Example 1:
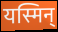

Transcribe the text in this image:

यस्मिन्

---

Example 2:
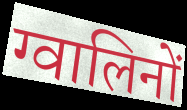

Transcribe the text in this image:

ग्वालिनों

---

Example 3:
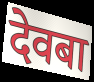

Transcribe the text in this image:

देवबा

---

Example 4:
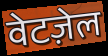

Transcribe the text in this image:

वेटज़ेल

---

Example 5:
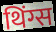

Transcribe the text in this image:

थिंग्स